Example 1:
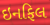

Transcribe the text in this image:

ઇનફિલ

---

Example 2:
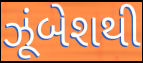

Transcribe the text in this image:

ઝૂંબેશથી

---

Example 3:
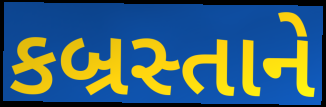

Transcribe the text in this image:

કબ્રસ્તાને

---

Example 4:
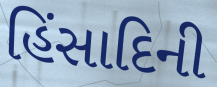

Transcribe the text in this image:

હિંસાદિની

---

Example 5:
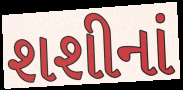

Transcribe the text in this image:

શશીનાં